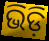
ଭିଡ଼ି